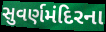
સુવર્ણમંદિરના